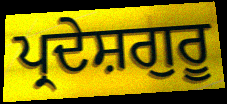
ਪ੍ਰਦੇਸ਼ਗੁਰੂ